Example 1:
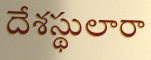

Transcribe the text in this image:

దేశస్థులారా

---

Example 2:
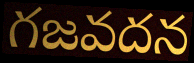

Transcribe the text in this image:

గజవదన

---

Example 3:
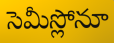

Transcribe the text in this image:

సెమీస్లోనూ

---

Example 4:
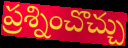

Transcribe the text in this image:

ప్రశ్నించొచ్చు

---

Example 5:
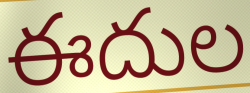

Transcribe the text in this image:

ఈదుల